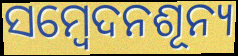
ସମ୍ବେଦନଶୂନ୍ୟ